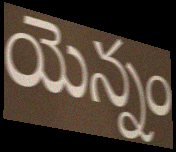
యెన్నం